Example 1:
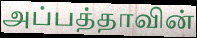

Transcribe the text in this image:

அப்பத்தாவின்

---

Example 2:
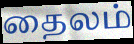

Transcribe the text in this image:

தைலம்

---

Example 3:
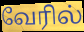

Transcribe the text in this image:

வேரில்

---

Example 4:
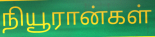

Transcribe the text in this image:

நியூரான்கள்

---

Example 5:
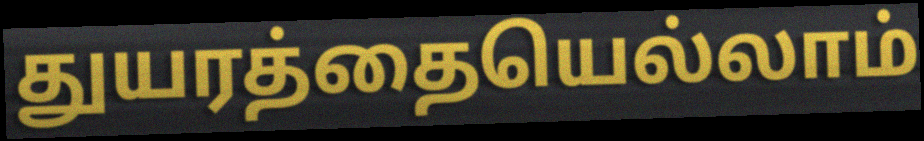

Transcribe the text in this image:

துயரத்தையெல்லாம்